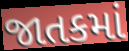
જાતકમાં